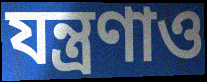
যন্ত্রণাও